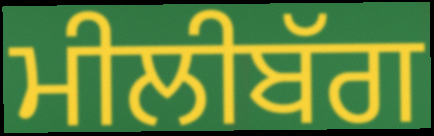
ਮੀਲੀਬੱਗ